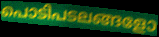
പൊടിപടലങ്ങളോ